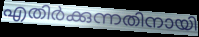
എതിർക്കുന്നതിനായി